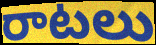
రాటలు